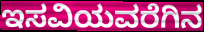
ಇಸವಿಯವರೆಗಿನ